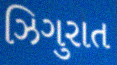
ઝિગુરાત